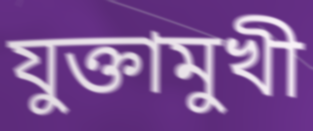
যুক্তামুখী